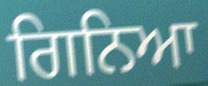
ਗਿਨਿਆ